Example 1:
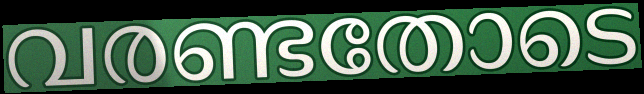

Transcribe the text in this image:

വരണ്ടതോടെ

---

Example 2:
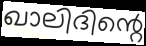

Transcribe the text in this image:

ഖാലിദിന്റെ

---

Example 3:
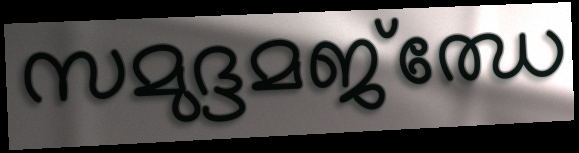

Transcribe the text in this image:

സമുദ്ദമജ്ഝേ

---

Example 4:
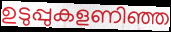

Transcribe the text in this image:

ഉടുപ്പുകളണിഞ്ഞ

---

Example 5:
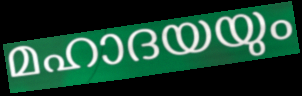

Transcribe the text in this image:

മഹാദയയും